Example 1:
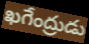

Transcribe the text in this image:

ఖగేంద్రుడు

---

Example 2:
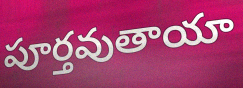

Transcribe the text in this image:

పూర్తవుతాయా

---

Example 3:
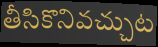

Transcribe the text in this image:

తీసికొనివచ్చుట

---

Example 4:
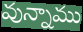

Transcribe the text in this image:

వున్నాము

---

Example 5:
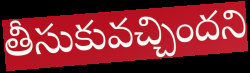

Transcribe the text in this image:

తీసుకువచ్చిందని